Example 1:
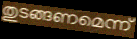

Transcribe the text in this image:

തുടങ്ങണമെന്ന്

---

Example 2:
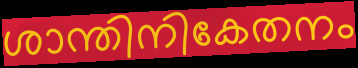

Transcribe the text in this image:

ശാന്തിനികേതനം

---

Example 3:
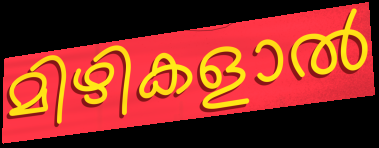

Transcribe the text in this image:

മിഴികളാൽ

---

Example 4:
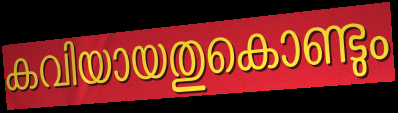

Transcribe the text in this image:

കവിയായതുകൊണ്ടും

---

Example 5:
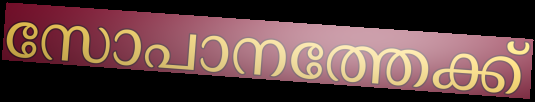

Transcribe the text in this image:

സോപാനത്തേക്ക്